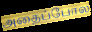
அதைப்போல